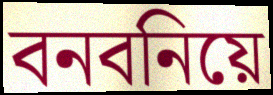
বনবনিয়ে